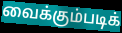
வைக்கும்படிக்